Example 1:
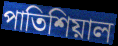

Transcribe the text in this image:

পাতিশিয়াল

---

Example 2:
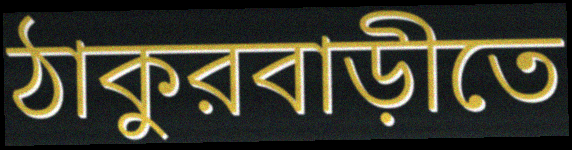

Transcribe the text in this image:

ঠাকুরবাড়ীতে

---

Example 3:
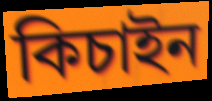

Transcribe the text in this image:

কিচাইন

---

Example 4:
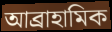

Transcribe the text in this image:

আব্রাহামিক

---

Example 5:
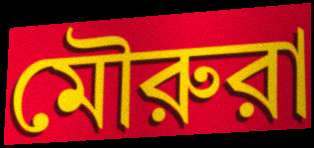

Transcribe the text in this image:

মৌরুরা